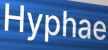
Hyphae